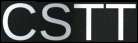
CSTT